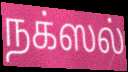
நக்ஸல்